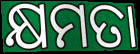
କ୍ଷମତା